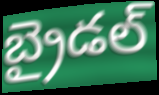
బ్రైడల్